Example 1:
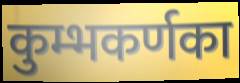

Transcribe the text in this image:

कुम्भकर्णका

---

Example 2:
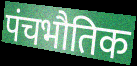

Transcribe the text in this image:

पंचभौतिक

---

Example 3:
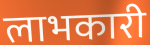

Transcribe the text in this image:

लाभकारी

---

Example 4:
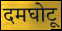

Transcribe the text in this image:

दमघोटू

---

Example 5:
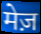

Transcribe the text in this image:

मेज़